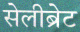
सेलीब्रेट